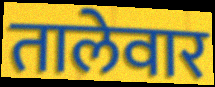
तालेवार